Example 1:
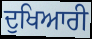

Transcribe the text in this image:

ਦੁਖਿਆਰੀ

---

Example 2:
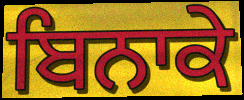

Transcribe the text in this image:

ਬਿਨਾਕੇ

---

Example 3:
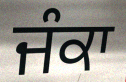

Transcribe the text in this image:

ਜੰਕਾ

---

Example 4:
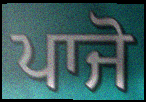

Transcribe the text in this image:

ਪਾਜੋ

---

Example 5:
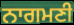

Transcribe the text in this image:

ਨਾਗਮਣੀ